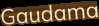
Gaudama